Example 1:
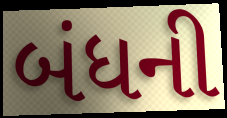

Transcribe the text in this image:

બંધની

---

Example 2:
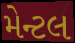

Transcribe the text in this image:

મેન્ટલ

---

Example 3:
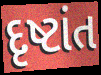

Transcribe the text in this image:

દૃષ્ટાંત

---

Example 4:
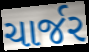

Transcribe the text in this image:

ચાર્જર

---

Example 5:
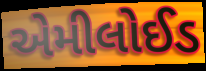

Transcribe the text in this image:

એમીલોઈડ